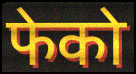
फेको